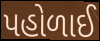
પહોળાઈ